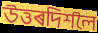
উত্তৰদিশলৈ